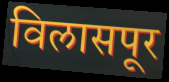
विलासपूर